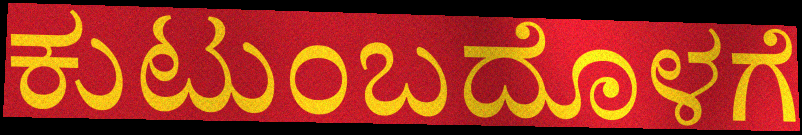
ಕುಟುಂಬದೊಳಗೆ